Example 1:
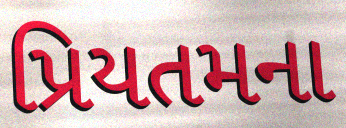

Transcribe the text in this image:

પ્રિયતમના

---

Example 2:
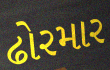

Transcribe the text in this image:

ઢોરમાર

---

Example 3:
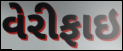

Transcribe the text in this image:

વેરીફાઇ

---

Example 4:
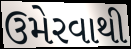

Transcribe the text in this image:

ઉમેરવાથી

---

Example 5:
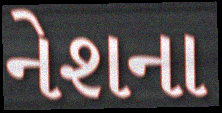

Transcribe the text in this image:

નેશના